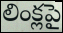
లింక్లపై